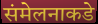
संमेलनाकडे